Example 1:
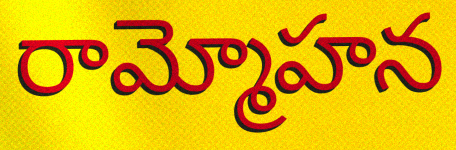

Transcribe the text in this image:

రామ్మోహన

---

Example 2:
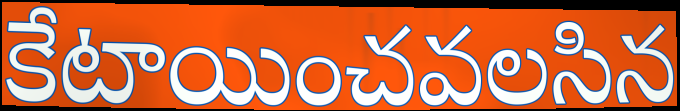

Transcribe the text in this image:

కేటాయించవలసిన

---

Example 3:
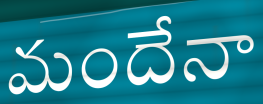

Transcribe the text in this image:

మందేనా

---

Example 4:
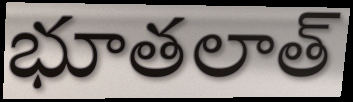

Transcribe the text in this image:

భూతలాత్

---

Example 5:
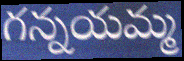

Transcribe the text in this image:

గన్నయమ్మ